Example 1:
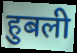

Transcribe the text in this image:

हुबली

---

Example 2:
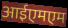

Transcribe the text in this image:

आईएमएम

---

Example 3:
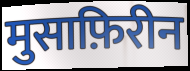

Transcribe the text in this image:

मुसाफ़िरीन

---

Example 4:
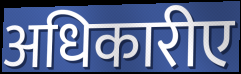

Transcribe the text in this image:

अधिकारीए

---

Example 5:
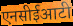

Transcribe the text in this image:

एनसीईआटी